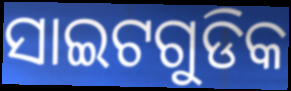
ସାଇଟଗୁଡିକ